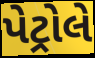
પેટ્રોલે